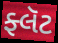
ફ્લૅટ